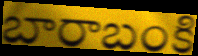
బారాబంకి